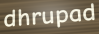
dhrupad